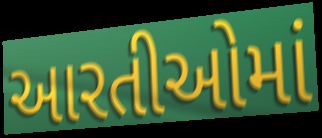
આરતીઓમાં